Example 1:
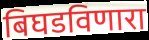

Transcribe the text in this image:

बिघडविणारा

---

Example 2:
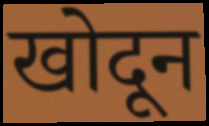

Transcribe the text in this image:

खोदून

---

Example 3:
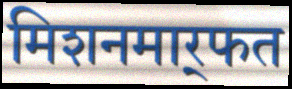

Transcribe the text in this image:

मिशनमार्फत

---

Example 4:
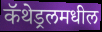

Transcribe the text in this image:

कॅथेड्रलमधील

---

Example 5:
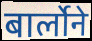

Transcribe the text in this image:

बार्लोने